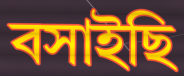
বসাইছি